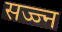
सज्ज्न